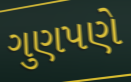
ગુણપણે